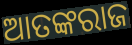
ଆତଙ୍କରାଜ